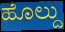
ಹೊಲ್ದು